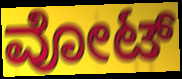
ವೋಟ್